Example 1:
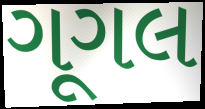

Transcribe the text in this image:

ગૂગલ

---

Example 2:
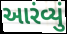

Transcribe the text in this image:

આરંવ્યું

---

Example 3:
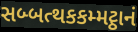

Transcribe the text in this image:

સબ્બત્થકકમ્મટ્ઠાનં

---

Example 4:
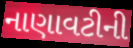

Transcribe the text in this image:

નાણાવટીની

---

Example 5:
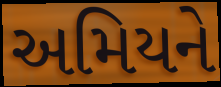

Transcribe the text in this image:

અમિયને